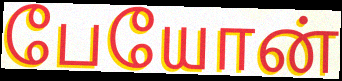
பேயோன்